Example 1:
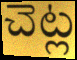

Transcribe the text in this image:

చెట్ల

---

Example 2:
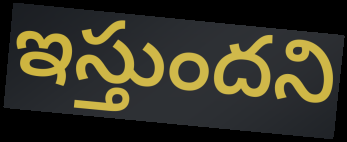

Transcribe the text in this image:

ఇస్తుందని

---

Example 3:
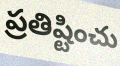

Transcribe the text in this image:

ప్రతిష్టించు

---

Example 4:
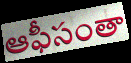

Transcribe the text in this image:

ఆఫీసంతా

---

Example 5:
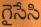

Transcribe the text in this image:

గైసేసి